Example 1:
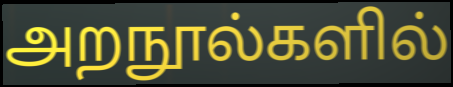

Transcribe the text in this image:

அறநூல்களில்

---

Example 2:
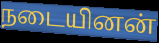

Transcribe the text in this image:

நடையினன்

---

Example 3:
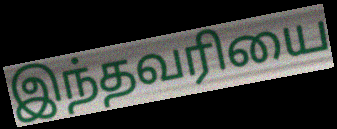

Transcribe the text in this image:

இந்தவரியை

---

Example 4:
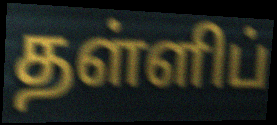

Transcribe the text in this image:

தள்ளிப்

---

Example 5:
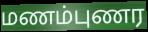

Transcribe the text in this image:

மணம்புணர